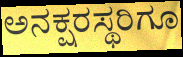
ಅನಕ್ಷರಸ್ಥರಿಗೂ